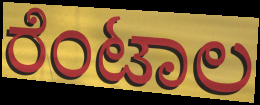
ರೆಂಟಾಲ